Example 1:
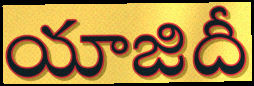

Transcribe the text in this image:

యాజిదీ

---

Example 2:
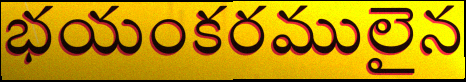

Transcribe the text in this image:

భయంకరములైన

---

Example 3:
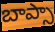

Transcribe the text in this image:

బాప్సా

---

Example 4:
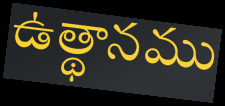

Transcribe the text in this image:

ఉత్థానము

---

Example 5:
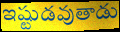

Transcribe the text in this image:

ఇష్టుడవుతాడు